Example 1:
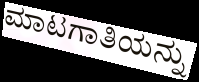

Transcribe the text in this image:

ಮಾಟಗಾತಿಯನ್ನು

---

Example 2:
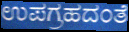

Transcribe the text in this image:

ಉಪಗ್ರಹದಂತೆ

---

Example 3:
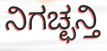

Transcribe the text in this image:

ನಿಗಚ್ಛನ್ತಿ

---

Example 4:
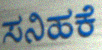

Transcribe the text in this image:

ಸನಿಹಕೆ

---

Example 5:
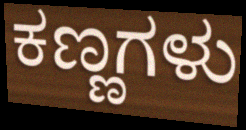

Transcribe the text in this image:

ಕಣ್ಣಗಳು